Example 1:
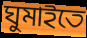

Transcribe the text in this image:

ঘুমাইতে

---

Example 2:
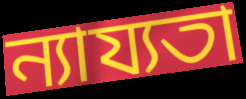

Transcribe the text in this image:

ন্যায্যতা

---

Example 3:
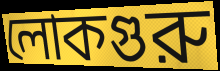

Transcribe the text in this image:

লোকগুরু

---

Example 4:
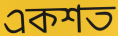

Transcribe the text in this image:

একশত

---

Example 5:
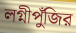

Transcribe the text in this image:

লগ্নীপুঁজির